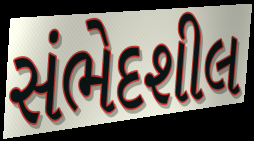
સંભેદશીલ